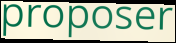
proposer